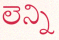
లెన్ని